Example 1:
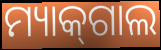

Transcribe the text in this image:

ମ୍ୟାକ୍‌ଗାଲ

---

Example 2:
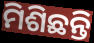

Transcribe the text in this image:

ମିଶିଛନ୍ତି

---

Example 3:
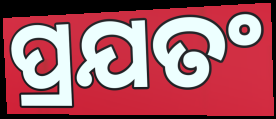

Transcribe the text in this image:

ପ୍ରଯତଂ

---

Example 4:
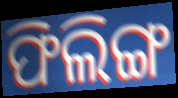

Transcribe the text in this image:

ଫିଲିଙ୍ଗ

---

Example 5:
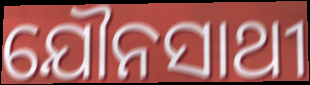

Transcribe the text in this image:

ଯୌନସାଥୀ